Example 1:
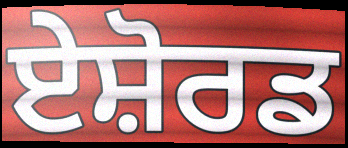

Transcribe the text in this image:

ਏਸ਼ੋਰਡ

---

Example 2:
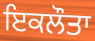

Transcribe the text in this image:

ਇਕਲੌਤਾ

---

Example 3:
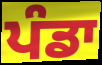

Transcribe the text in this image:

ਪੰਡਾ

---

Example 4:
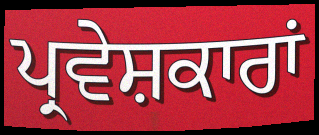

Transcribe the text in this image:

ਪ੍ਰਵੇਸ਼ਕਾਰਾਂ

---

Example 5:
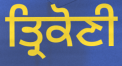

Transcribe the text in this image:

ਤ੍ਰਿਕੋਣੀ